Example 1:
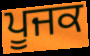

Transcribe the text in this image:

ਪੂਜਕ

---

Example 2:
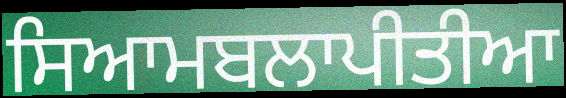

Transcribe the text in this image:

ਸਿਆਮਬਲਾਪੀਤੀਆ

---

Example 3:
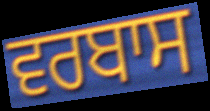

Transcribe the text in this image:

ਵਰਬਾਸ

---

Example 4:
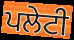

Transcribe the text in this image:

ਪਲੇਟੀ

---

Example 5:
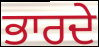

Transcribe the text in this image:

ਭਾਰਦੇ